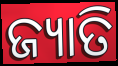
ଜ୍ୟାତି